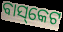
ବାସ୍‌କେଟ